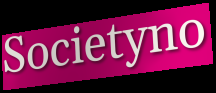
Societyno